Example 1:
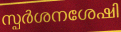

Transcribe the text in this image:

സ്പർശനശേഷി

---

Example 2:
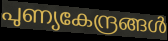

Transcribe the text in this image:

പുണ്യകേന്ദ്രങ്ങൾ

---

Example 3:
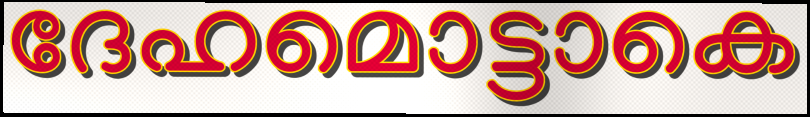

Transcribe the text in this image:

ദേഹമൊട്ടാകെ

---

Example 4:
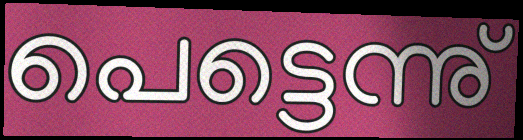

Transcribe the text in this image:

പെട്ടെന്നു്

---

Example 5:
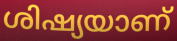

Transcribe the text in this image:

ശിഷ്യയാണ്